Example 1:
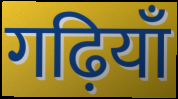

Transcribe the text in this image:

गढ़ियाँ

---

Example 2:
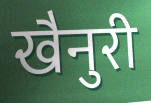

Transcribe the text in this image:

खैनुरी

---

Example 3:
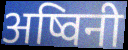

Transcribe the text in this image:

अष्विनी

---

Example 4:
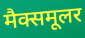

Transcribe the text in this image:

मैक्समूलर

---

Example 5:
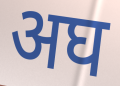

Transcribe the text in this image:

अघ